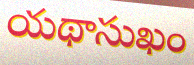
యథాసుఖం